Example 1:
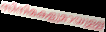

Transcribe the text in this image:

സിനിമകളുമായുള്ള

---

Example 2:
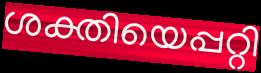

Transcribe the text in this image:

ശക്തിയെപ്പറ്റി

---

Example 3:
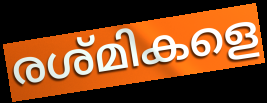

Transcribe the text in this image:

രശ്മികളെ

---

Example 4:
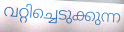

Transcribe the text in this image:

വറ്റിച്ചെടുക്കുന്ന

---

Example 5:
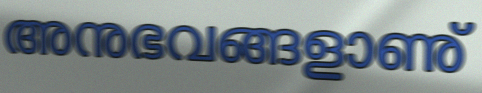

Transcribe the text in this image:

അനുഭവങ്ങളാണു്